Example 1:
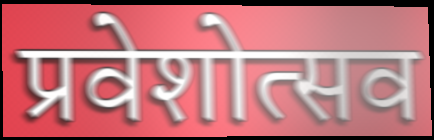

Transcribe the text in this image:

प्रवेशोत्सव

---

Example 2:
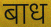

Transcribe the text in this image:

बाध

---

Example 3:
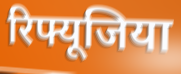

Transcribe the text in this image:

रिफ्यूजिया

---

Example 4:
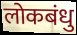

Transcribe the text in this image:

लोकबंधु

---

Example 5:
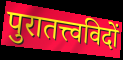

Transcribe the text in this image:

पुरातत्त्वविदों